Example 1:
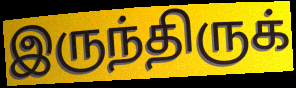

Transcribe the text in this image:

இருந்திருக்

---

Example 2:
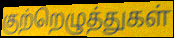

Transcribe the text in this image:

குற்றெழுத்துகள்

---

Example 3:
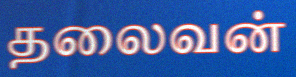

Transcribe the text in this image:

தலைவன்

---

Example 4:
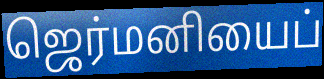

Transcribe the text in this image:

ஜெர்மனியைப்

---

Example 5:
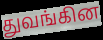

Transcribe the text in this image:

துவங்கின